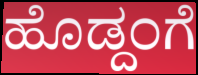
ಹೊಡ್ದಂಗೆ